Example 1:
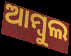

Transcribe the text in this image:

ଆମ୍ବୁଲ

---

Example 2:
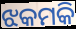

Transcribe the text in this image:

ଝକମକି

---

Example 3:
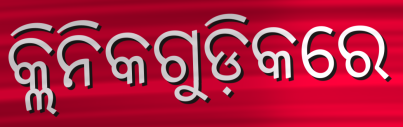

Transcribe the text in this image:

କ୍ଲିନିକଗୁଡ଼ିକରେ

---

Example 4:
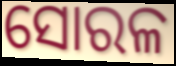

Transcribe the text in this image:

ସୋରଳ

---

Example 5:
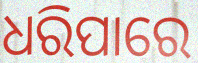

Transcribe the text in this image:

ଧରିପାରେ